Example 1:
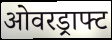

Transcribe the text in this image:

ओवरड्राफ्ट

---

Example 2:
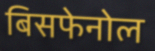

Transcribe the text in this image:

बिसफेनोल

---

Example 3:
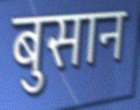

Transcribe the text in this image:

बुसान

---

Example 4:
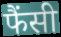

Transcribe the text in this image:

फैंसी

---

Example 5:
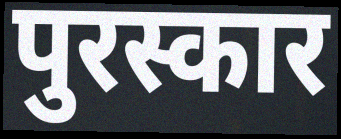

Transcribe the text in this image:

पुरस्कार